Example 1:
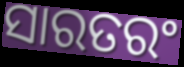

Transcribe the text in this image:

ସାରତରଂ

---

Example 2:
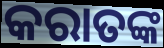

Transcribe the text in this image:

କରାତଙ୍କ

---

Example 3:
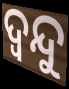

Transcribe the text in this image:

ଦ୍ଵନ୍ଦୁ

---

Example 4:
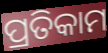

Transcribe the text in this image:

ପ୍ରତିକାମ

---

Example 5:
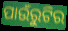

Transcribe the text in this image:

ପାଉଁରୁଟିର